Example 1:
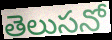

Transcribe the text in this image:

తెలుసనో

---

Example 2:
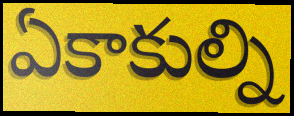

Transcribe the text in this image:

ఏకాకుల్ని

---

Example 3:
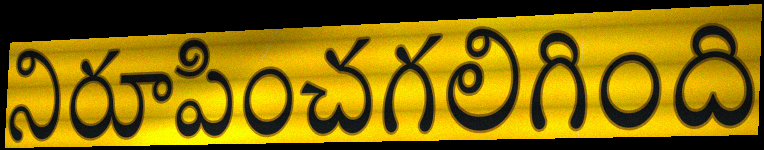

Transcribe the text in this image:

నిరూపించగలిగింది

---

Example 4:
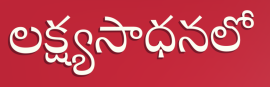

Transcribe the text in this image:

లక్ష్యసాధనలో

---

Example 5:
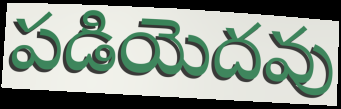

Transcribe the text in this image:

పడియెదవు